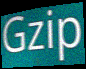
Gzip